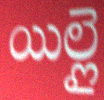
యిల్లై